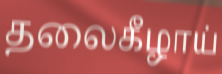
தலைகீழாய்